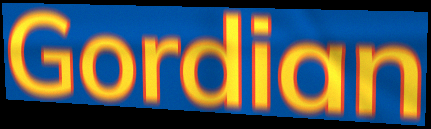
Gordian